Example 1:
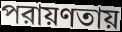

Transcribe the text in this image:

পরায়ণতায়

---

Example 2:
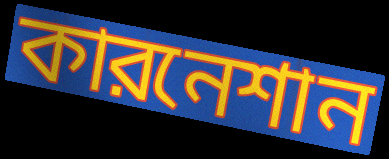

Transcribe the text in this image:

কারনেশান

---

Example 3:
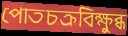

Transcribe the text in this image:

পোতচক্রবিক্ষুব্ধ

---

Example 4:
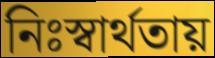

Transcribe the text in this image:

নিঃস্বার্থতায়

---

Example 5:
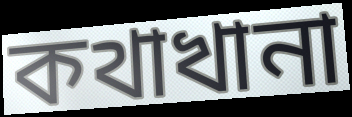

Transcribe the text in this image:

কথাখানা